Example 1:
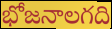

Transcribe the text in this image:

భోజనాలగది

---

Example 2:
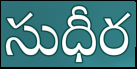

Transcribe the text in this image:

సుధీర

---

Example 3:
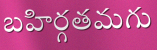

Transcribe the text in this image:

బహిర్గతమగు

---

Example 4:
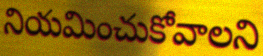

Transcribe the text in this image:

నియమించుకోవాలని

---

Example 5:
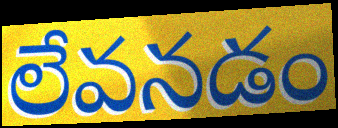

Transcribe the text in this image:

లేవనడం